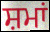
ਸ਼ਮਾਂ